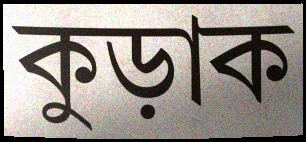
কুড়াক